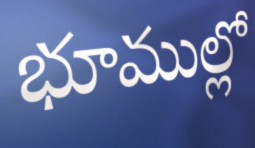
భూముల్లో